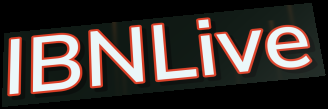
IBNLive